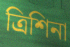
ত্রিশিনা